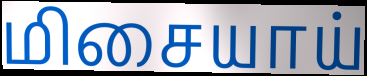
மிசையாய்